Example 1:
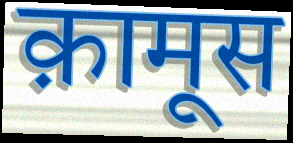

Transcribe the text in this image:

क़ामूस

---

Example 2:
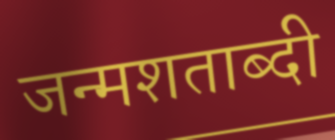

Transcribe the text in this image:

जन्मशताब्दी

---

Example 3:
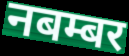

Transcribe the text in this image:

नबम्बर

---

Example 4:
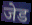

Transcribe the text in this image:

जेड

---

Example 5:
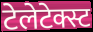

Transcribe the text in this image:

टेलेटेक्स्ट